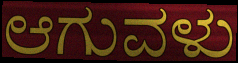
ಆಗುವಳು